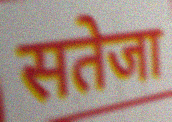
सतेजा